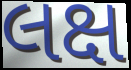
લક્ષ